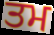
ਤਮ